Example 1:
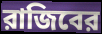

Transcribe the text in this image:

রাজিবের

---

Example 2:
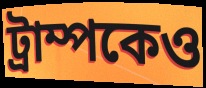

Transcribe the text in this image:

ট্রাম্পকেও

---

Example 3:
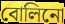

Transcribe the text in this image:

বোলিনো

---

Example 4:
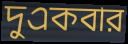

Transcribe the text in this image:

দুএকবার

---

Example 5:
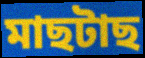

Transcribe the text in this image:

মাছটাছ